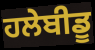
ਹਲੇਬੀਡੂ